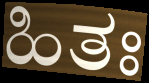
ಹಿತಃ